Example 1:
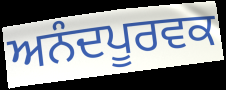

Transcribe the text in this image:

ਅਨੰਦਪੂਰਵਕ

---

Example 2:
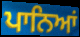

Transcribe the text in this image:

ਪਾਨਿਆਂ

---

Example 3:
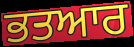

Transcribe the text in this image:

ਭਤਆਰ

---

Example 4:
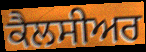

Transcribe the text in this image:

ਕੈਲਸੀਅਰ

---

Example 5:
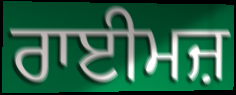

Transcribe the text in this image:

ਰਾਈਮਜ਼